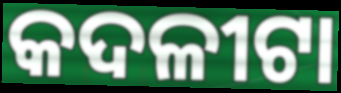
କଦଳୀଟା